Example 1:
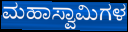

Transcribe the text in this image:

ಮಹಾಸ್ವಾಮಿಗಳ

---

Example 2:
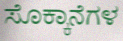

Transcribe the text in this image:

ಸೊಕ್ಕಾನೆಗಳ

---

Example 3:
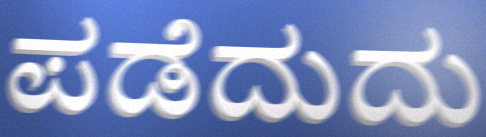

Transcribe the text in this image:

ಪಡೆದುದು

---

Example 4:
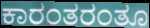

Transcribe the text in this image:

ಕಾರಂತರಂತೂ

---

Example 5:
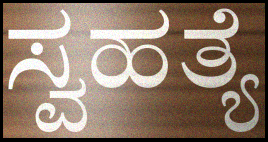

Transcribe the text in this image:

ಸ್ವಹತ್ಯೆ